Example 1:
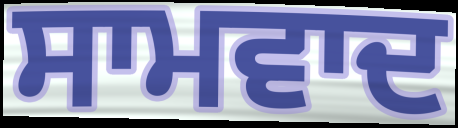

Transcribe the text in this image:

ਸਾਮਵਾਦ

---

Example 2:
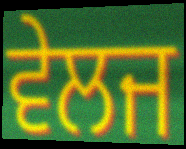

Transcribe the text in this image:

ਵੇਲਜ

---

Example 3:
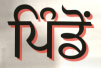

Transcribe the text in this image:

ਪਿੰਡੋਂ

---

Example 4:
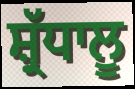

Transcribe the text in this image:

ਸ਼੍ਰੱਧਾਲੂ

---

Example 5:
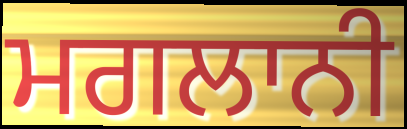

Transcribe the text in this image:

ਮਗਲਾਨੀ